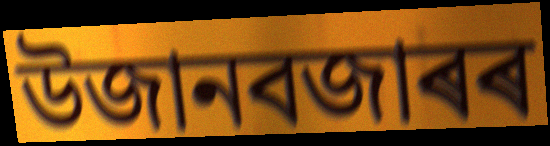
উজানবজাৰৰ